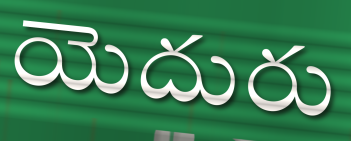
యెదురు